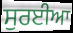
ਸੁਰਈਆ